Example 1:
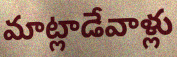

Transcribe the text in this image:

మాట్లాడేవాళ్లు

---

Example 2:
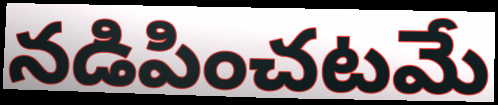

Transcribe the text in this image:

నడిపించటమే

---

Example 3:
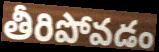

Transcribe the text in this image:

తీరిపోవడం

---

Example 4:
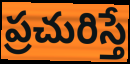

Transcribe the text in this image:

ప్రచురిస్తే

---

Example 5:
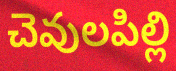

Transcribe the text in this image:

చెవులపిల్లి